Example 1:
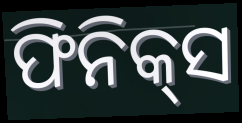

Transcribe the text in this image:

ଫିନିକ୍‌ସ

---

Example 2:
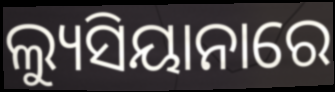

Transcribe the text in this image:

ଲ୍ୟୁସିୟାନାରେ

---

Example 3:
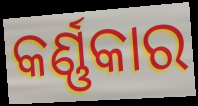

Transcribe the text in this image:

କର୍ଣ୍ଣକାର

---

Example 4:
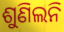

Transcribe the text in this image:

ଶୁଣିଲନି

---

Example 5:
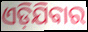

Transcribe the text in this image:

ଏଡ଼ିଯିବାର